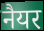
नैयर